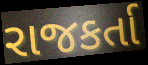
રાજકર્તા